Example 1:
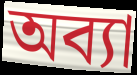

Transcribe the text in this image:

অব্যা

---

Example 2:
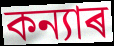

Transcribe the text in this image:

কন্যাৰ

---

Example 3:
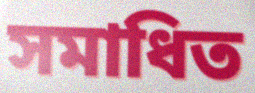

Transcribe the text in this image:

সমাধিত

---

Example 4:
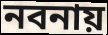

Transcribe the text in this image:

নবনায়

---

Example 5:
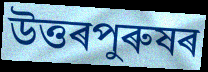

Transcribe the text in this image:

উত্তৰপুৰুষৰ